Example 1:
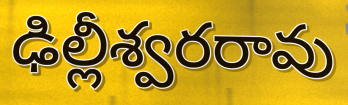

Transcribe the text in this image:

ఢిల్లీశ్వరరావు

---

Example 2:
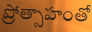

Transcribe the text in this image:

ప్రోత్సాహంతో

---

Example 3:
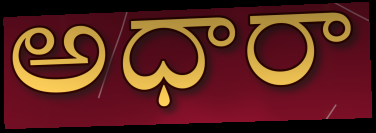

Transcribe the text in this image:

అధారా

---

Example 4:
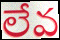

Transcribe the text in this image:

లేవ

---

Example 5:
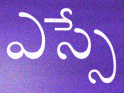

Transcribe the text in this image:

ఎస్సే